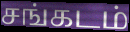
சங்கடம்